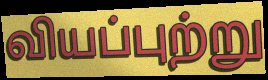
வியப்புற்று